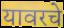
यावरचे